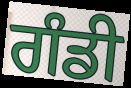
ਗੰਡੀ